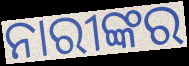
ନାରୀଙ୍କର